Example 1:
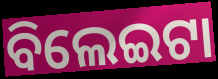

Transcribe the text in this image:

ବିଲେଇଟା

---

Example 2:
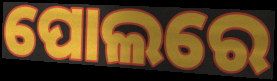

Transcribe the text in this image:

ପୋଲରେ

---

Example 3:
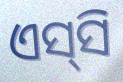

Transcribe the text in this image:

ଏସ୍‌ସି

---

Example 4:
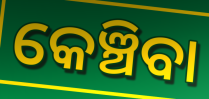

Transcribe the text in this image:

କେଞ୍ଚିବା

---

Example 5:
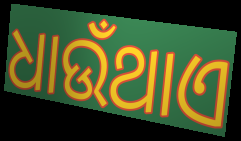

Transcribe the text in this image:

ଧାଉଁଥାଏ